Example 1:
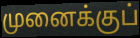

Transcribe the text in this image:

முனைக்குப்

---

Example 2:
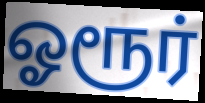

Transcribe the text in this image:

ஓரூர்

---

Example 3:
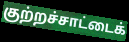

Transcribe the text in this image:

குற்றச்சாட்டைக்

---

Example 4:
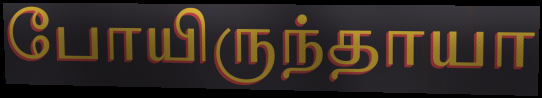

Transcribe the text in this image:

போயிருந்தாயா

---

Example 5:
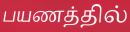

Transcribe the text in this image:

பயணத்தில்